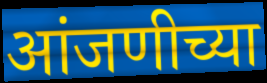
आंजणीच्या